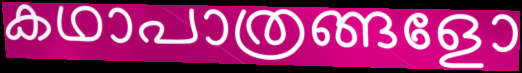
കഥാപാത്രങ്ങളോ